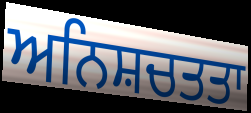
ਅਨਿਸ਼ਚਤਤਾ